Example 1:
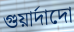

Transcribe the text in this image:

গুয়ার্দাদো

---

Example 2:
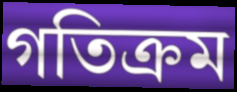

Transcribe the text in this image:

গতিক্রম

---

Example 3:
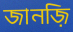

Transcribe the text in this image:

জানজ়ি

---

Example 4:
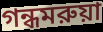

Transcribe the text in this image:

গন্ধমরুয়া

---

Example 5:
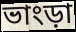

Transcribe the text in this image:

ভাংড়া